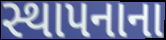
સ્થાપનાના